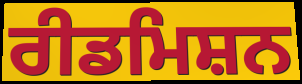
ਰੀਡਮਿਸ਼ਨ